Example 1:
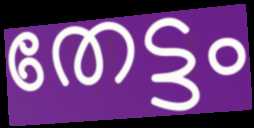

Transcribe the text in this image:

തേട്ടം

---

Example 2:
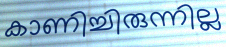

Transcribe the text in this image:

കാണിച്ചിരുന്നില്ല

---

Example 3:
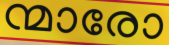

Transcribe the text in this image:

ന്മാരോ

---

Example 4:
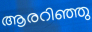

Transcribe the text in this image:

ആരറിഞ്ഞു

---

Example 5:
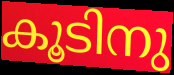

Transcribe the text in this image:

കൂടിനു